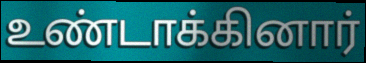
உண்டாக்கினார்